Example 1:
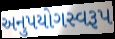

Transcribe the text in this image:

અનુપયોગસ્વરૂપ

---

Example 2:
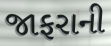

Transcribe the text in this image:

જાફરાની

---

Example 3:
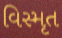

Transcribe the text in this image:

વિસ્મૃત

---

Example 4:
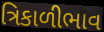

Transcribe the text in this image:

ત્રિકાળીભાવ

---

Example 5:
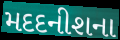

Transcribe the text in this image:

મદદનીશના